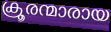
ക്രൂരന്മാരായ